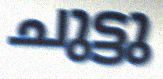
ചുട്ടു